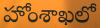
హోంశాఖలో